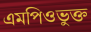
এমপিওভুক্ত